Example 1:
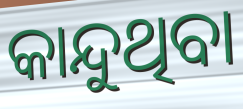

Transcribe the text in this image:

କାନ୍ଦୁଥିବା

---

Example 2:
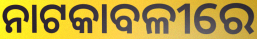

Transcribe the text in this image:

ନାଟକାବଳୀରେ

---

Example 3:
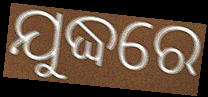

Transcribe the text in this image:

ଯୁଦ୍ଧରେ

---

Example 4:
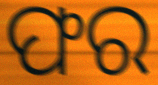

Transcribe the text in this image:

ଫର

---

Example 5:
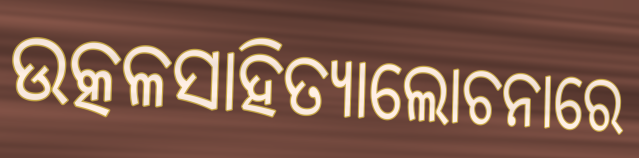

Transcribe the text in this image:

ଉତ୍କଳସାହିତ୍ୟାଲୋଚନାରେ